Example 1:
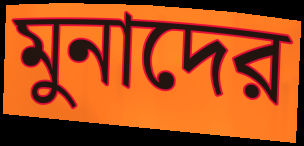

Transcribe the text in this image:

মুনাদের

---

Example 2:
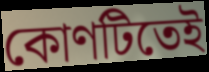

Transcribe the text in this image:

কোণটিতেই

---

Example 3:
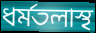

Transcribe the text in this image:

ধর্মতলাস্থ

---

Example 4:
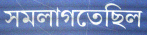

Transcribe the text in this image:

সমলাগতেছিল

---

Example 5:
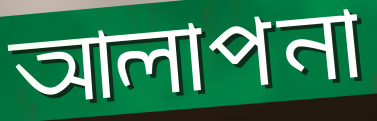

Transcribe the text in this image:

আলাপনা